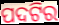
ପଦଟିର